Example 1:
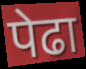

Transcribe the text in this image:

पेढा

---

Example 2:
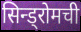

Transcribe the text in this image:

सिन्ड्रोमची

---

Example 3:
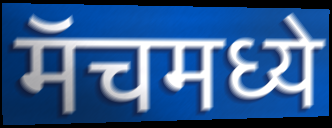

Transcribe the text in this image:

मॅचमध्ये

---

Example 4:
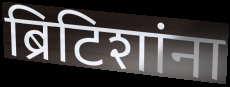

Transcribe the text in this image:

ब्रिटिशांना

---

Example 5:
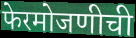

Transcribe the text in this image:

फेरमोजणीची